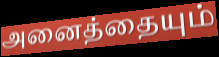
அனைத்தையும்